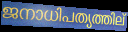
ജനാധിപത്യത്തില്